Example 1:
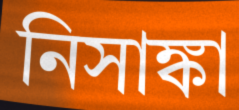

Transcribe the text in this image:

নিসাঙ্কা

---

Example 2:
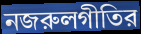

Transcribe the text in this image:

নজরুলগীতির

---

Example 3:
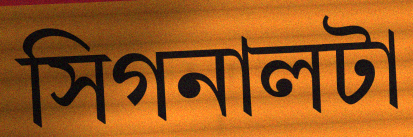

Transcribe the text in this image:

সিগনালটা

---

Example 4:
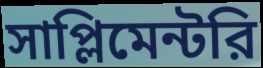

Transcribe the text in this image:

সাপ্লিমেন্টরি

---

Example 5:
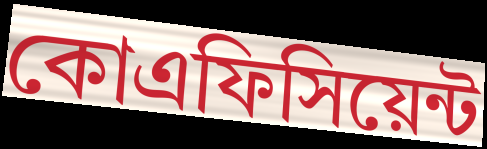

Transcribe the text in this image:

কোএফিসিয়েন্ট